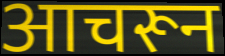
आचरून